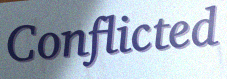
Conflicted